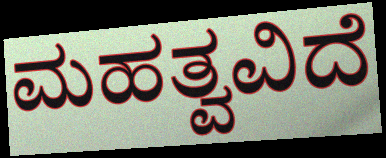
ಮಹತ್ವವಿದೆ